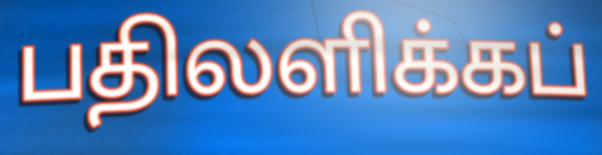
பதிலளிக்கப்